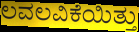
ಲವಲವಿಕೆಯಿತ್ತು